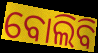
ବୋଲିବି